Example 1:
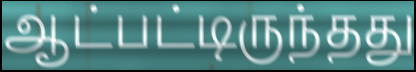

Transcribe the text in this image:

ஆட்பட்டிருந்தது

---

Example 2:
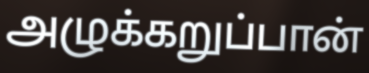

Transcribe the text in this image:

அழுக்கறுப்பான்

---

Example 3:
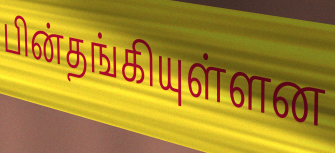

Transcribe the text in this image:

பின்தங்கியுள்ளன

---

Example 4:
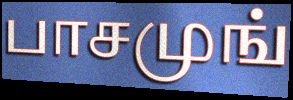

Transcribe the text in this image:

பாசமுங்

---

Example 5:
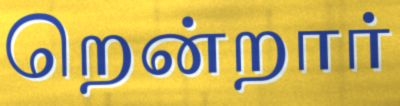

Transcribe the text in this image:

றென்றார்